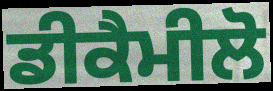
ਡੀਕੈਮੀਲੋ